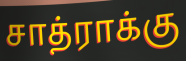
சாத்ராக்கு